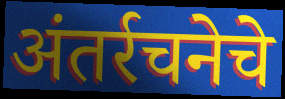
अंतर्रचनेचे